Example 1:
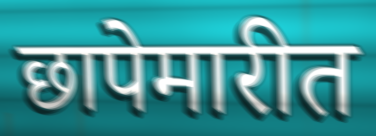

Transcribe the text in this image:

छापेमारीत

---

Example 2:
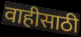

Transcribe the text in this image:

वाहीसाठी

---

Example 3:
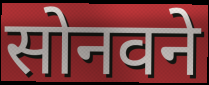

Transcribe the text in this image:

सोनवने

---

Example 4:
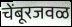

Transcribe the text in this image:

चेंबूरजवळ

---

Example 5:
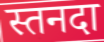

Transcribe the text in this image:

स्तनदा